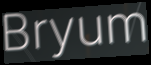
Bryum